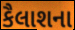
કૈલાશના